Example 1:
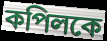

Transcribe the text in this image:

কপিলকে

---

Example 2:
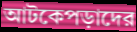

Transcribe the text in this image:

আটকেপড়াদের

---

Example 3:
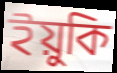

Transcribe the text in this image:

ইয়ুকি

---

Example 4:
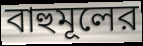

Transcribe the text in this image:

বাহুমূলের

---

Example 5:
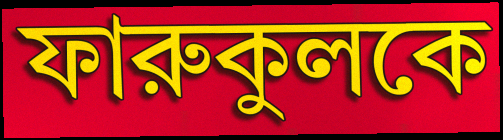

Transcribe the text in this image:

ফারুকুলকে